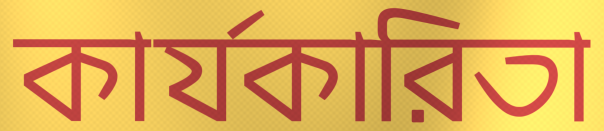
কার্যকারিতা